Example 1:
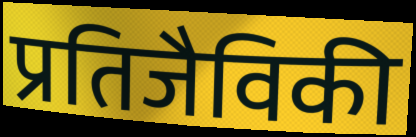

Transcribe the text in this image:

प्रतिजैविकी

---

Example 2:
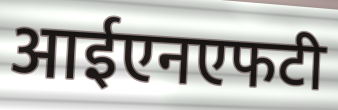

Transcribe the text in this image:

आईएनएफटी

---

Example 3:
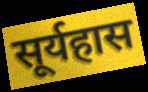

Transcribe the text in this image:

सूर्यहास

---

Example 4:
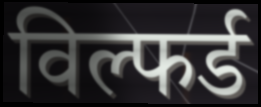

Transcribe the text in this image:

विल्फर्ड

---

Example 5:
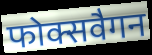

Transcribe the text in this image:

फोक्सवैगन